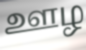
ஊழ